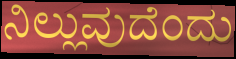
ನಿಲ್ಲುವುದೆಂದು